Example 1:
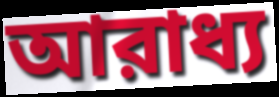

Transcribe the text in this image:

আরাধ্য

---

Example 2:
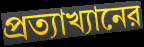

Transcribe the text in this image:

প্রত্যাখ্যানের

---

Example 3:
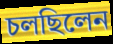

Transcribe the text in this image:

চলছিলেন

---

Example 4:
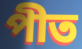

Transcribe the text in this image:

পীত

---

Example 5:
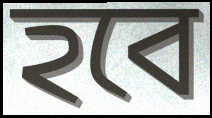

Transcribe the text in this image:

হবে